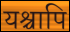
यश्चापि